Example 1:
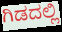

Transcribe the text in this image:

ಗಿಡದಲ್ಲಿ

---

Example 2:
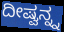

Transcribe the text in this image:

ದೀಷ್ವನ್ನ್ನ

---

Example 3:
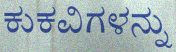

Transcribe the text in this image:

ಕುಕವಿಗಳನ್ನು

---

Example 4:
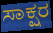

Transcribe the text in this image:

ಸಾಕ್ಷರ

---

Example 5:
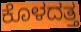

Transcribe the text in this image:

ಕೊಳದತ್ತ